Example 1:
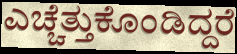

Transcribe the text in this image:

ಎಚ್ಚೆತ್ತುಕೊಂಡಿದ್ದರೆ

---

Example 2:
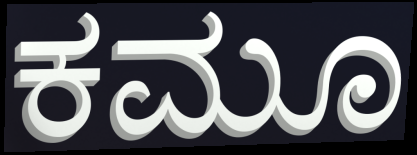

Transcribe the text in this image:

ಕಮೂ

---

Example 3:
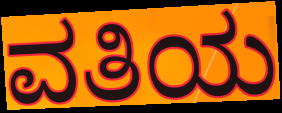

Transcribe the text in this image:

ವತಿಯ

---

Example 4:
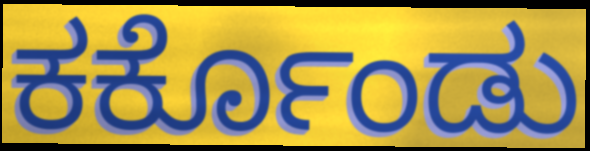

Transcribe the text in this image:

ಕರ್ಕೊಂಡು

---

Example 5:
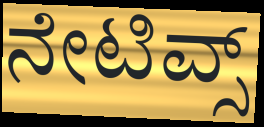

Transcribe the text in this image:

ನೇಟಿವ್ಸ್